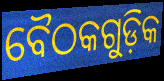
ବୈଠକଗୁଡ଼ିକ